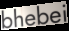
bhebei